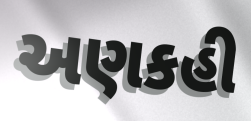
અણકહી